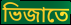
ভিজাতে